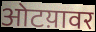
ओटय़ावर